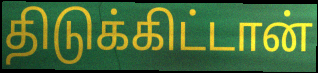
திடுக்கிட்டான்